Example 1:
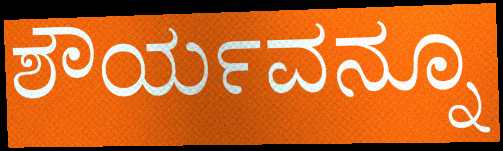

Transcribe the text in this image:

ಶೌರ್ಯವನ್ನೂ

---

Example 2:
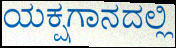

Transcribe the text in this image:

ಯಕ್ಷಗಾನದಲ್ಲಿ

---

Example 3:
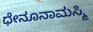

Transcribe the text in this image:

ಧೇನೂನಾಮಸ್ಮಿ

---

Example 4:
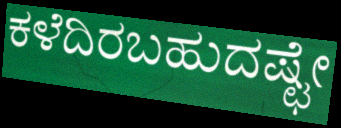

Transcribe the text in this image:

ಕಳೆದಿರಬಹುದಷ್ಟೇ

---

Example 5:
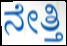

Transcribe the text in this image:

ನೇತ್ತಿ